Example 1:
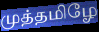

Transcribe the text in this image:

முத்தமிழே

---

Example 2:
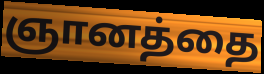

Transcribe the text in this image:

ஞானத்தை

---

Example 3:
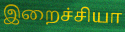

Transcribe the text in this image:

இறைச்சியா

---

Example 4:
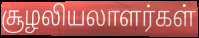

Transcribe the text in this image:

சூழலியலாளர்கள்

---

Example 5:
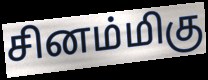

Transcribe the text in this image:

சினம்மிகு